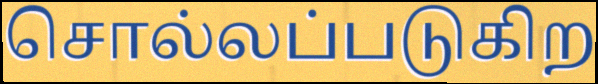
சொல்லப்படுகிற